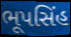
ભૂપસિંહ